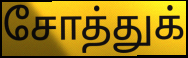
சோத்துக்